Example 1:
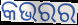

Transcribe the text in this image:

କଭରର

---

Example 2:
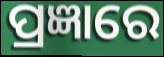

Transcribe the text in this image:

ପ୍ରଜ୍ଞାରେ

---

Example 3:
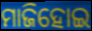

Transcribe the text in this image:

ମାଜିହୋଇ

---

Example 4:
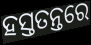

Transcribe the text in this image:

ହସ୍ତତନ୍ତରେ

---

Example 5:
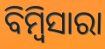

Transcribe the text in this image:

ବିମ୍ବିସାରା